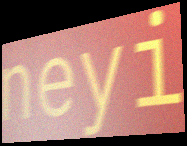
neyi